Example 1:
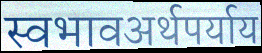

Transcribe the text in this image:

स्वभावअर्थपर्याय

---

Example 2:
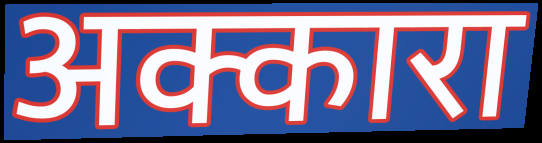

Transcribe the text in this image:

अक्कारा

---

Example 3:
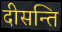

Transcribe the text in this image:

दीसन्ति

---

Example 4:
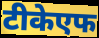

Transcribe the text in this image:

टीकेएफ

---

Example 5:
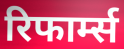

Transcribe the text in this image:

रिफार्म्स